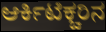
ಆರ್ಕಿಟೆಕ್ಚರಿನ